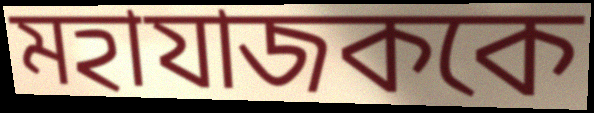
মহাযাজককে